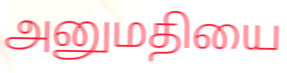
அனுமதியை